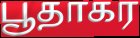
பூதாகர